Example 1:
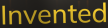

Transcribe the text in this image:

Invented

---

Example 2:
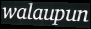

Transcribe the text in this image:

walaupun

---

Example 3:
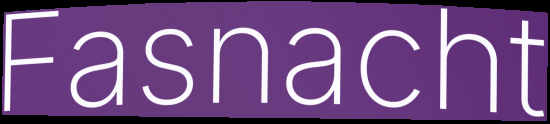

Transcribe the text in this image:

Fasnacht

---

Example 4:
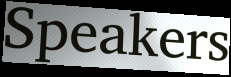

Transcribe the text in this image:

Speakers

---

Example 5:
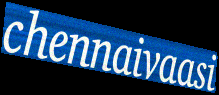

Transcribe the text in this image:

chennaivaasi